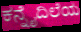
ಕನ್ನೈದಿಲೆಯ